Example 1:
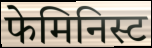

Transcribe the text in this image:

फेमिनिस्ट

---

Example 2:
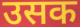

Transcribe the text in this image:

उसक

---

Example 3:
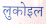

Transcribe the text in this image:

लुकोइल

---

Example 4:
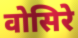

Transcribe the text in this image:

वोसिरे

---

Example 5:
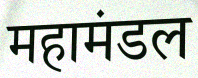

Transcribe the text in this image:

महामंडल